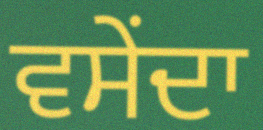
ਵਸੇਂਦਾ